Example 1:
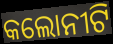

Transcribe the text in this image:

କଲୋନୀଟି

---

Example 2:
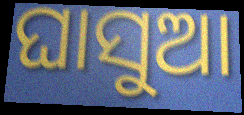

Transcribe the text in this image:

ଘାସୁଆ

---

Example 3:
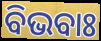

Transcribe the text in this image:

ବିଭବାଃ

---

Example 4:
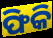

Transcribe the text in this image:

ଫିକି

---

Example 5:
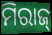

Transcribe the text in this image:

ମିରାଜ୍